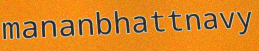
mananbhattnavy